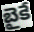
బైకే